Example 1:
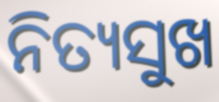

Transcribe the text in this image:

ନିତ୍ୟସୁଖ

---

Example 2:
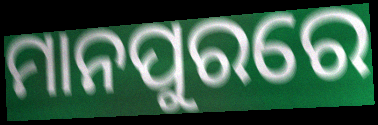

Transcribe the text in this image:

ମାନପୁରରେ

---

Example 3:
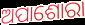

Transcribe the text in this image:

ଅପାଶୋରା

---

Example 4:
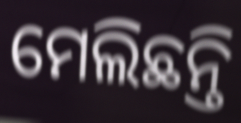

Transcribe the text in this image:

ମେଲିଛନ୍ତି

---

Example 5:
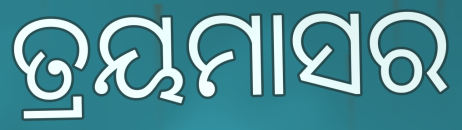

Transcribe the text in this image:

ତ୍ରୟମାସର